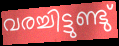
വരച്ചിട്ടുണ്ടു്